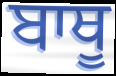
ਬਾਥੂ